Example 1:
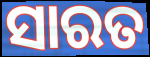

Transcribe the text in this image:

ସାରତ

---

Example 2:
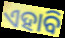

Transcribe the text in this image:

ଏହାବି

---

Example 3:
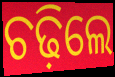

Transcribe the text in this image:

ଚଢ଼ିଲେ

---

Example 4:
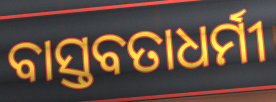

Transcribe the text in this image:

ବାସ୍ତବତାଧର୍ମୀ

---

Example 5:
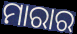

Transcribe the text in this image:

ମାରାର